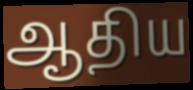
ஆதிய